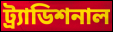
ট্র্যাডিশনাল